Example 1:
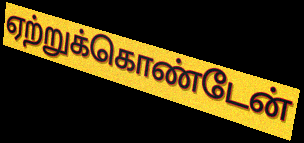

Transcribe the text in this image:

ஏற்றுக்கொண்டேன்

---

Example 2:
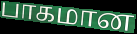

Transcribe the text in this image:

பாகமான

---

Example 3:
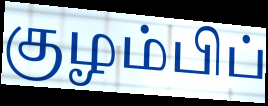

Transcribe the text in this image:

குழம்பிப்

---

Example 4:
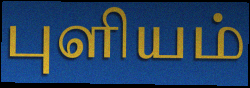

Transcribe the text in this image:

புளியம்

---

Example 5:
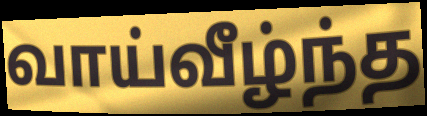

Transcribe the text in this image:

வாய்வீழ்ந்த